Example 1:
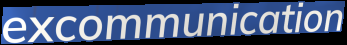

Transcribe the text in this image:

excommunication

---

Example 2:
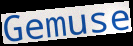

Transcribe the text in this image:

Gemuse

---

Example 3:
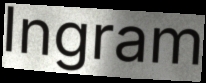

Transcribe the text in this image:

Ingram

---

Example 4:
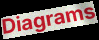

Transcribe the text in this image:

Diagrams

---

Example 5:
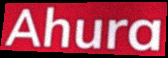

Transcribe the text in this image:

Ahura